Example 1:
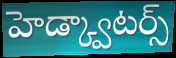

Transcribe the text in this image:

హెడ్క్వాటర్స్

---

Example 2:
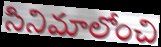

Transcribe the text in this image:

సినిమాలోంచి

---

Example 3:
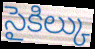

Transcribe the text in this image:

సైకిల్కు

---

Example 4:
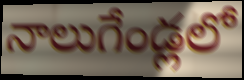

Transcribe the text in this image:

నాలుగేండ్లలో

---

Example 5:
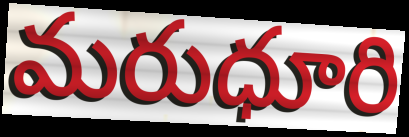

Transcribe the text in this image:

మరుధూరి